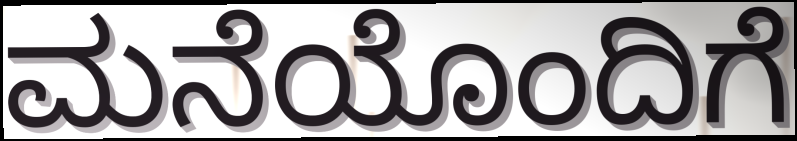
ಮನೆಯೊಂದಿಗೆ